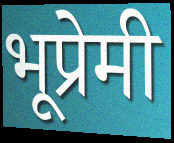
भूप्रेमी